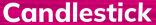
Candlestick